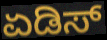
ಏಡಿಸ್